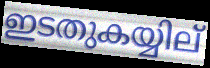
ഇടതുകയ്യില്